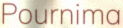
Pournima